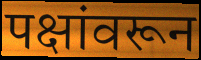
पक्षांवरून